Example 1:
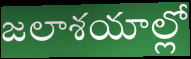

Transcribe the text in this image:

జలాశయాల్లో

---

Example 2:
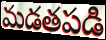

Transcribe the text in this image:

మడతపడి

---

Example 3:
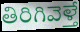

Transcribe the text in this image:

తిరిగివెళ్తే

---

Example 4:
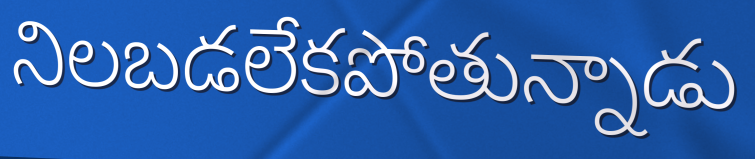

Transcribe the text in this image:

నిలబడలేకపోతున్నాడు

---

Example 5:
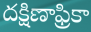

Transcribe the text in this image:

దక్షిణాఫ్రికా